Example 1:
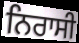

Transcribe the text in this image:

ਨਿਰਾਸੀ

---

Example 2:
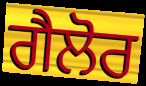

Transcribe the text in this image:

ਗੈਲੋਰ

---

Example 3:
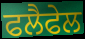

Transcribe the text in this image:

ਫਲੈਫੇਲ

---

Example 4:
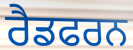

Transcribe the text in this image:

ਰੈਡਫਰਨ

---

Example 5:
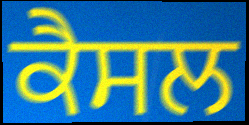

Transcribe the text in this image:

ਕੈਸਲ